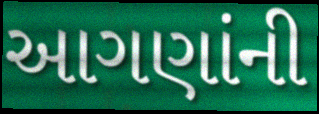
આગણાંની